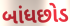
બાંધછોડ